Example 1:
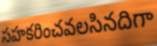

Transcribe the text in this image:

సహకరించవలసినదిగా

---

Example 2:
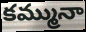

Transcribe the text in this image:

కమ్మునా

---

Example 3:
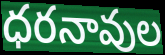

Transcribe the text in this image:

ధరనావుల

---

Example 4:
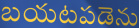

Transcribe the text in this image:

బయటపడెను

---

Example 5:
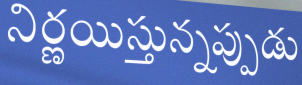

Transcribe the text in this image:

నిర్ణయిస్తున్నప్పుడు